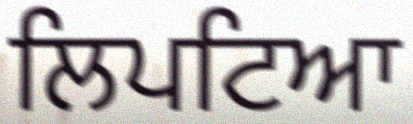
ਲਿਪਟਿਆ